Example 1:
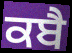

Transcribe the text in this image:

ਕਬੈ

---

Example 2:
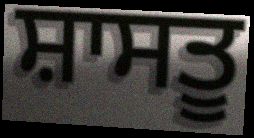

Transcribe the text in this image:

ਸ਼ਾਸਤੂ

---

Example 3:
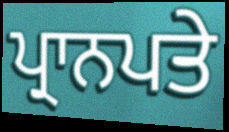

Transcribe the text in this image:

ਪ੍ਰਾਨਪਤੇ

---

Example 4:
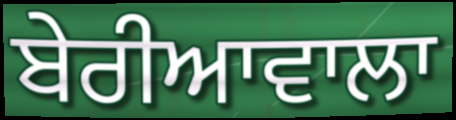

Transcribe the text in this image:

ਬੇਰੀਆਵਾਲਾ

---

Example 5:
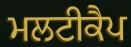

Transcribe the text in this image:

ਮਲਟੀਕੈਪ